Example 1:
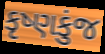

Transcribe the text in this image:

કૃષ્ણકુંજ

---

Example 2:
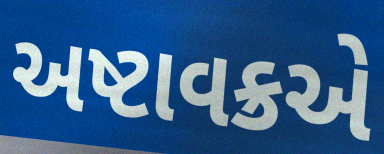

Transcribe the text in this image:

અષ્ટાવક્રએ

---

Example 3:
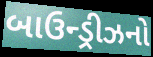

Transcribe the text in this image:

બાઉન્ડ્રીઝનો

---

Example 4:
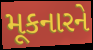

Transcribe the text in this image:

મૂકનારને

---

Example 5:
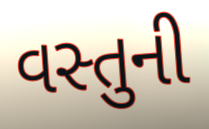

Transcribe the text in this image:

વસ્તુની